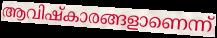
ആവിഷ്കാരങ്ങളാണെന്ന്